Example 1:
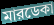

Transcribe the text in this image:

মারডেকা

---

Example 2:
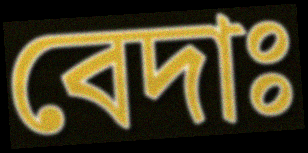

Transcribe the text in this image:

বেদাঃ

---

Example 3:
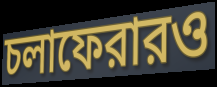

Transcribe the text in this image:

চলাফেরারও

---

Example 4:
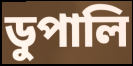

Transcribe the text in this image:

ডুপালি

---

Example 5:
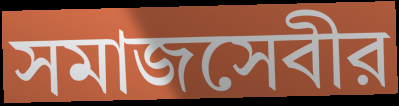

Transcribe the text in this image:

সমাজসেবীর